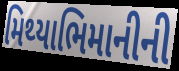
મિથ્યાભિમાનીની